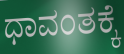
ಧಾವಂತಕ್ಕೆ